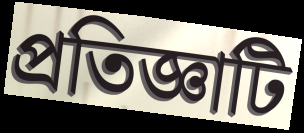
প্রতিজ্ঞাটি